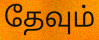
தேவும்